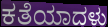
ಕತೆಯಾದಳು